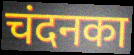
चंदनका